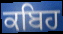
ਕਬਿਹ